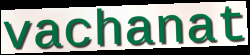
vachanat